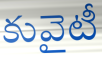
కువైటీ